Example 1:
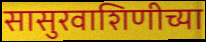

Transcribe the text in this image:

सासुरवाशिणीच्या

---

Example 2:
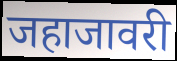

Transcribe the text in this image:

जहाजावरी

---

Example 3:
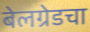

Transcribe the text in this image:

बेलग्रेडचा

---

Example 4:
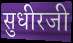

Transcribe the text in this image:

सुधीरजी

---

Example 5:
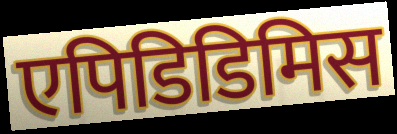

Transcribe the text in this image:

एपिडिडिमिस